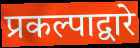
प्रकल्पाद्वारे